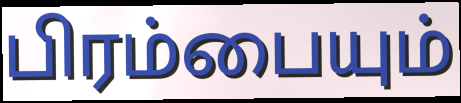
பிரம்பையும்